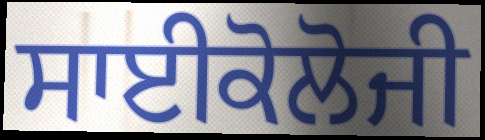
ਸਾਈਕੋਲੋਜੀ